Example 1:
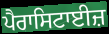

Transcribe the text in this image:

ਪੈਰਾਸਿਟਾਈਜ਼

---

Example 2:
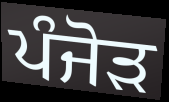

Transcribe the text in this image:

ਪੰਜੋੜ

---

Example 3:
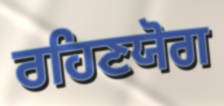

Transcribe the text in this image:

ਰਹਿਣਯੋਗ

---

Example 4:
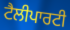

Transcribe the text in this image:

ਟੈਲੀਪਾਰਟੀ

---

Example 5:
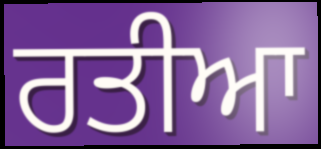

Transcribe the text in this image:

ਰਤੀਆ